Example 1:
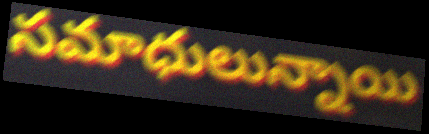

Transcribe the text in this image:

సమాధులున్నాయి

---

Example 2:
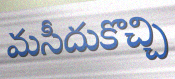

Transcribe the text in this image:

మసీదుకొచ్చి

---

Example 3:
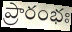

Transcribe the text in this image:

ప్రారంభః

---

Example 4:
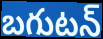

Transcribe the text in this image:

బగుటన్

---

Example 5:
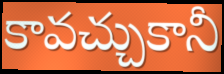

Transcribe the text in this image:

కావచ్చుకానీ